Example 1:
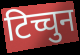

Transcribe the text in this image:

टिच्चुन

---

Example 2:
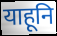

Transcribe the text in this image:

याहूनि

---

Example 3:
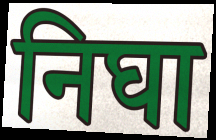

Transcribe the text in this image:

निघा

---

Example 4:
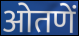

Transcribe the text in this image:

ओतणें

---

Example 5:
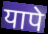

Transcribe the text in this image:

यापे